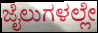
ಜೈಲುಗಳಲ್ಲೇ